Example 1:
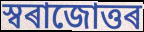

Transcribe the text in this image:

স্বৰাজোত্তৰ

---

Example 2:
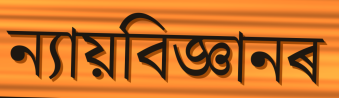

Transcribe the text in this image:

ন্যায়বিজ্ঞানৰ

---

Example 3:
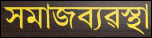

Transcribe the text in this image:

সমাজব্যৱস্থা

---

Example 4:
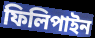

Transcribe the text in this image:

ফিলিপাইন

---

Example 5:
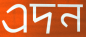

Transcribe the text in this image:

এদন